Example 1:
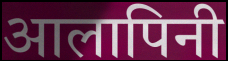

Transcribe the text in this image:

आलापिनी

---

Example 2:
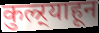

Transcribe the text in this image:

कुल्र्याहून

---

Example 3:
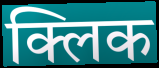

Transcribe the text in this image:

क्लिक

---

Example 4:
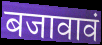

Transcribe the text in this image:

बजावावं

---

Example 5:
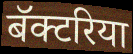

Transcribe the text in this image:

बॅक्टरिया